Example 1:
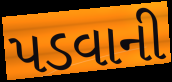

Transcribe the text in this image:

પડવાની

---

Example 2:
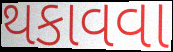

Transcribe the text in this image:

થકાવવા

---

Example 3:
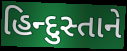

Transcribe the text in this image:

હિન્દુસ્તાને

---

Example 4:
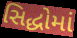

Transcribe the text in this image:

સિદ્ધોમાં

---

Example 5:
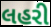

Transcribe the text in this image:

લહરી